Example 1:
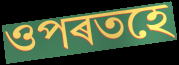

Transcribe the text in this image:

ওপৰতহে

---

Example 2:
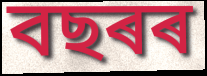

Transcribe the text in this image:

বছৰৰ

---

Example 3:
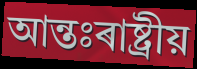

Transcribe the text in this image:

আন্তঃৰাষ্ট্ৰীয়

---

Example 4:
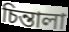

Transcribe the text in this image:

চিন্তালা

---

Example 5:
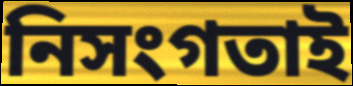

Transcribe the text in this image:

নিসংগতাই